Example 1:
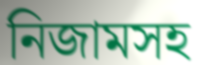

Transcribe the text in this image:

নিজামসহ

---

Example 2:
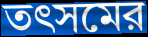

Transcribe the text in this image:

তৎসমের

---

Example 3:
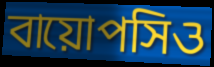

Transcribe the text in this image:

বায়োপসিও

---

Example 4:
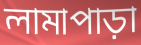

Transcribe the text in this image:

লামাপাড়া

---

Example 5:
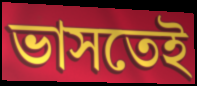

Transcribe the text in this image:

ভাসতেই